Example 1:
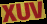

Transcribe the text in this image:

XUV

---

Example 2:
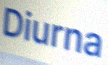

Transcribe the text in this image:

Diurna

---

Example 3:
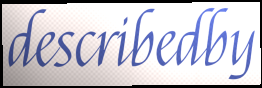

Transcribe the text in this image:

describedby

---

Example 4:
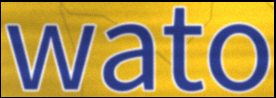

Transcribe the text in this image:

wato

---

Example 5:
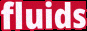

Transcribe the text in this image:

fluids